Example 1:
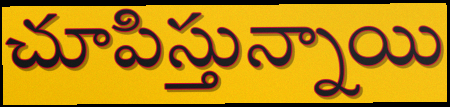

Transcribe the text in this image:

చూపిస్తున్నాయి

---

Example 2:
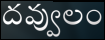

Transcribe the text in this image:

దవ్వులం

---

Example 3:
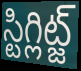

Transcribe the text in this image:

స్టిగ్లిట్జ్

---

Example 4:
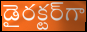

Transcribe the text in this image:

డైరక్టర్‌గా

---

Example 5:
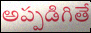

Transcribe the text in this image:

అప్పడిగితే